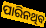
ପାରିନଥିବ